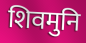
शिवमुनि